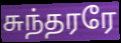
சுந்தரரே